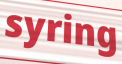
syring